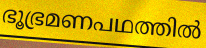
ഭൂഭ്രമണപഥത്തിൽ